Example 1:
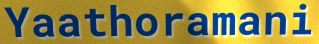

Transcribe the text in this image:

Yaathoramani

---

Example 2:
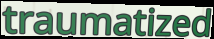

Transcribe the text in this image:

traumatized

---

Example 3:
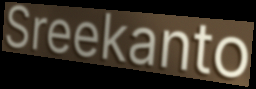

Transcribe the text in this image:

Sreekanto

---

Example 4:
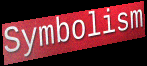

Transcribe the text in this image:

Symbolism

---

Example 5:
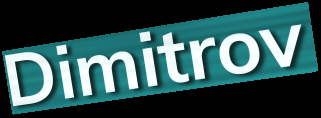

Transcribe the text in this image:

Dimitrov